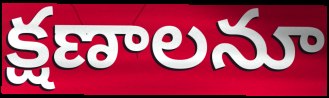
క్షణాలనూ